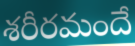
శరీరమందే